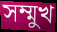
সম্মুখ